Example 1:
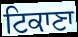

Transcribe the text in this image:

ਟਿਕਾਣਾ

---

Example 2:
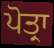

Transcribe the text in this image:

ਪੋਤ੍ਰਾ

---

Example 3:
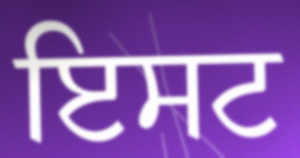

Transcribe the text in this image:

ਇਸਟ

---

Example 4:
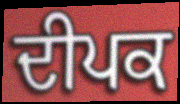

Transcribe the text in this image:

ਦੀਪਕ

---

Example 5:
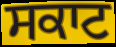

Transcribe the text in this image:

ਸਕਾਟ